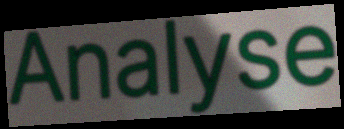
Analyse